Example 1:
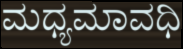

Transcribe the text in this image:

ಮಧ್ಯಮಾವಧಿ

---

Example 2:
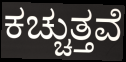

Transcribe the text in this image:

ಕಚ್ಚುತ್ತವೆ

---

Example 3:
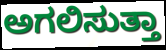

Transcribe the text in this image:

ಅಗಲಿಸುತ್ತಾ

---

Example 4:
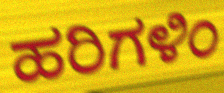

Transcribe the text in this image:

ಹರಿಗಳಿಂ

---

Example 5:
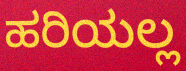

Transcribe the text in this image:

ಹರಿಯಲ್ಲ